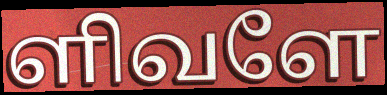
ளிவளே